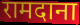
रामदाना